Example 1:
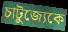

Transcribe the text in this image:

চাটুজ্যেকে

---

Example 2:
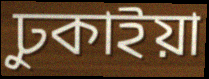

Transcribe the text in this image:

ঢুকাইয়া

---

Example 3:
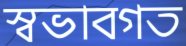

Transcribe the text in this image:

স্বভাবগত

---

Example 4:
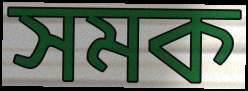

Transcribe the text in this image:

সমক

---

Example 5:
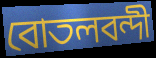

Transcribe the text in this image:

বোতলবন্দী